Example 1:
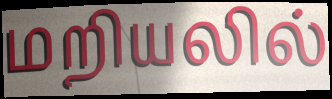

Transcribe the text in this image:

மறியலில்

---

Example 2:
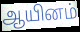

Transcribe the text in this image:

ஆயினம்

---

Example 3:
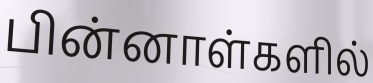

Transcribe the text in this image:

பின்னாள்களில்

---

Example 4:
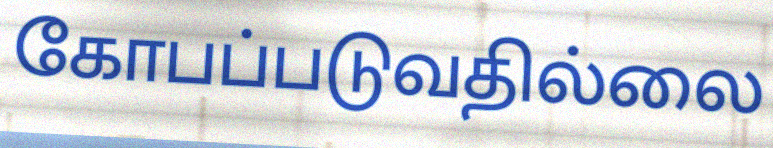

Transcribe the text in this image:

கோபப்படுவதில்லை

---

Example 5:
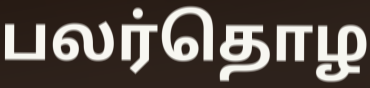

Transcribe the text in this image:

பலர்தொழ